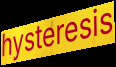
hysteresis